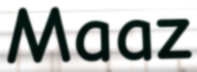
Maaz